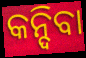
କନ୍ଦିବା